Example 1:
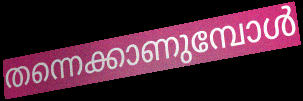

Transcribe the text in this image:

തന്നെക്കാണുമ്പോൾ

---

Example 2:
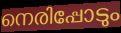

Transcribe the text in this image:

നെരിപ്പോടും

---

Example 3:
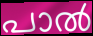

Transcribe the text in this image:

പാൽ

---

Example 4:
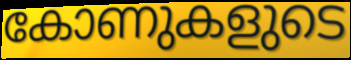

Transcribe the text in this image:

കോണുകളുടെ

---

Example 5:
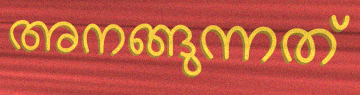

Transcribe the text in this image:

അനങ്ങുന്നത്